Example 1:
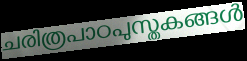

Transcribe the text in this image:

ചരിത്രപാഠപുസ്തകങ്ങൾ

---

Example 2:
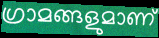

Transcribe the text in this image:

ഗ്രാമങ്ങളുമാണ്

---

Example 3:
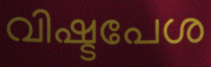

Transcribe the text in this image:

വിഷ്ടപേശ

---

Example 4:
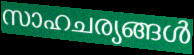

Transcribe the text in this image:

സാഹചര്യങ്ങൾ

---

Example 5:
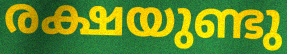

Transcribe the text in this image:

രക്ഷയുണ്ടു